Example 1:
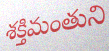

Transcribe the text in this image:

శక్తిమంతుని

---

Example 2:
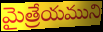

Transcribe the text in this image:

మైత్రేయముని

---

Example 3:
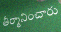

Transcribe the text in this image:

తీర్మానించారు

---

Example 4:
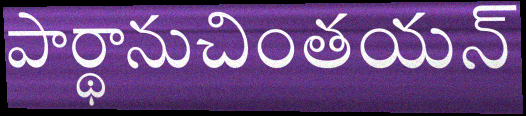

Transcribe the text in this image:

పార్థానుచింతయన్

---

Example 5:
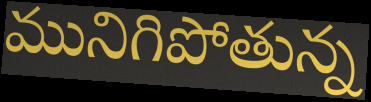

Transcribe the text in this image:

మునిగిపోతున్న